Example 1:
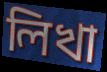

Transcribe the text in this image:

লিখা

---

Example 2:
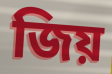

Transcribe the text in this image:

জিয়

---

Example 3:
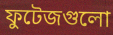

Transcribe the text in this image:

ফুটেজগুলো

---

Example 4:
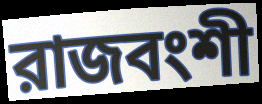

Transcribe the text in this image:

রাজবংশী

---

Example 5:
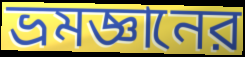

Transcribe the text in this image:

ভ্রমজ্ঞানের